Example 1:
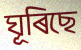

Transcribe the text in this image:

ঘূৰিছে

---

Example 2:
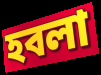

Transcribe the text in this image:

হবলা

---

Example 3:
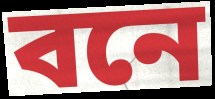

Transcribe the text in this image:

বনে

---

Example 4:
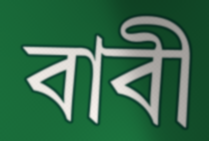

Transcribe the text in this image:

বাবী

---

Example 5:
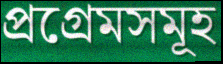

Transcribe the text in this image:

প্ৰগ্ৰেমসমূহ